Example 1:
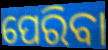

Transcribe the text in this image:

ପେରିବା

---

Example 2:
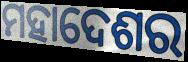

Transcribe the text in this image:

ମହାଦେଶର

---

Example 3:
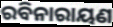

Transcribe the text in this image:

ରବିନାରାୟଣ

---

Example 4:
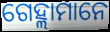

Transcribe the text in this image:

ଗେହ୍ଲାମାନେ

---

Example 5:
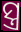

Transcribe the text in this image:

ସ୍ତ୍ର